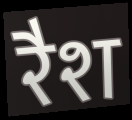
रैश